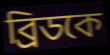
ব্রিডকে